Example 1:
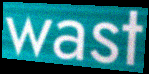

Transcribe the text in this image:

wast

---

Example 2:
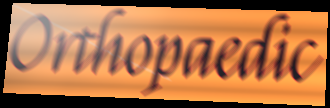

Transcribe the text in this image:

Orthopaedic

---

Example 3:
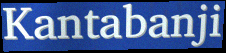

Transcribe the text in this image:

Kantabanji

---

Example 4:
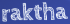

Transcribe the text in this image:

raktha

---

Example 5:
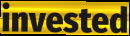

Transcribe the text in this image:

invested